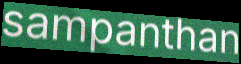
sampanthan